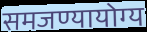
समजण्यायोग्य